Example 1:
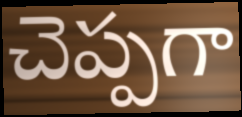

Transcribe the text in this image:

చెప్పగా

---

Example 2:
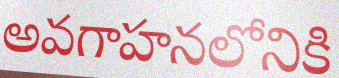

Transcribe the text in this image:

అవగాహనలోనికి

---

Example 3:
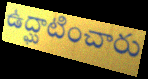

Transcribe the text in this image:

ఉద్ఘాటించారు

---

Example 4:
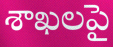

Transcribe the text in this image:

శాఖలపై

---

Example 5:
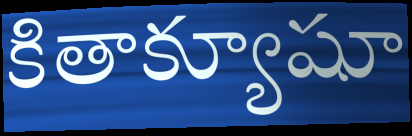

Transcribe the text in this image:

కితాక్యూషూ